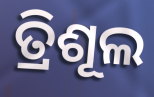
ତ୍ରିଶୂଲ